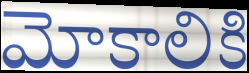
మోకాలికి